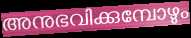
അനുഭവിക്കുമ്പോഴും